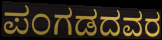
ಪಂಗಡದವರ